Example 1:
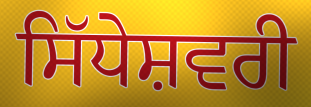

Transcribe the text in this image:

ਸਿੱਧੇਸ਼ਵਰੀ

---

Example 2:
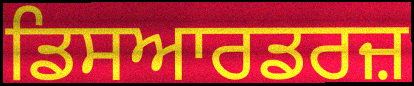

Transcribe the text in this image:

ਡਿਸਆਰਡਰਜ਼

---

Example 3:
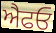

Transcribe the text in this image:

ਐਫਓ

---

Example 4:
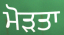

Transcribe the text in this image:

ਮੋੜਤਾ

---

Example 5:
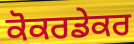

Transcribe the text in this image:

ਕੋਕਰਡੇਕਰ